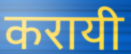
करायी